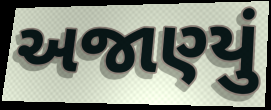
અજાણ્યું